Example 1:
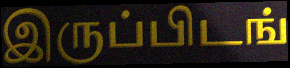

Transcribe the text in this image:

இருப்பிடங்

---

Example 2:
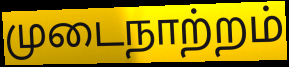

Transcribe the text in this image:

முடைநாற்றம்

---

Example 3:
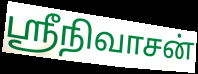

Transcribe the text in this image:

ஸ்ரீநிவாசன்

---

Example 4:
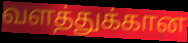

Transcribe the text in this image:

வளத்துக்கான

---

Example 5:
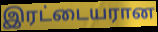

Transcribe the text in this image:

இரட்டையரான